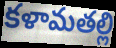
కళామతల్లి